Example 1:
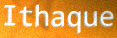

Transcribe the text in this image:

Ithaque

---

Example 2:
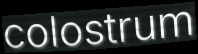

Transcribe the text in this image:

colostrum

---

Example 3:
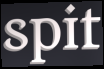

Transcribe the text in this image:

spit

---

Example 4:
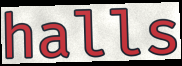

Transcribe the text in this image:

halls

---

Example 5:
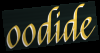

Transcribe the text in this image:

oodide